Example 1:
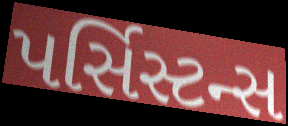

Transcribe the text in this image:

પર્સિસ્ટન્સ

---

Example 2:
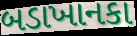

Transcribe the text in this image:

બડાખાનકા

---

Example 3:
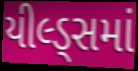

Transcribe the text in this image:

યીલ્ડ્સમાં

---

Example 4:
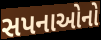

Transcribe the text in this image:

સપનાઓનો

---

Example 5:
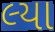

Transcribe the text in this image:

લ્યા